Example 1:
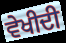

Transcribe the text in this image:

ਵੇਖੀਦੀ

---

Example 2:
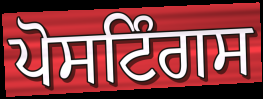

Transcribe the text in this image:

ਪੋਸਟਿੰਗਸ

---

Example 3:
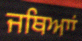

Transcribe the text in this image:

ਜਥਿਆਾਂ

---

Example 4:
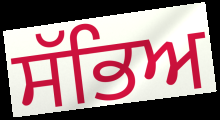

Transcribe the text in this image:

ਸੱਭਿਅ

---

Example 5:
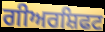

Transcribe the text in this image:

ਗੀਅਰਸ਼ਿਫਟ